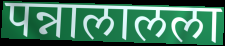
पन्नालालला